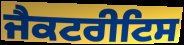
ਜੈਕਟਰੀਟਿਸ